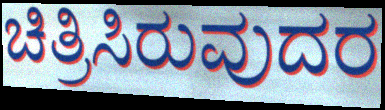
ಚಿತ್ರಿಸಿರುವುದರ